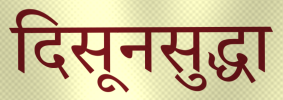
दिसूनसुद्धा